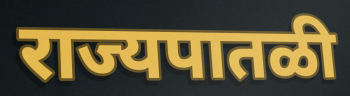
राज्यपातळी